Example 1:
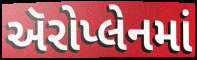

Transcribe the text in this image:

ઍરોપ્લેનમાં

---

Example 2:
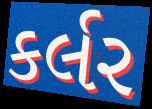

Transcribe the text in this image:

કર્લર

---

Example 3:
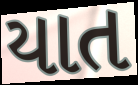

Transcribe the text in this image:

યાત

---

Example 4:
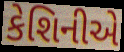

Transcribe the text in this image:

કેશિનીએ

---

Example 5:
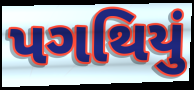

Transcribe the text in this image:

પગથિયું